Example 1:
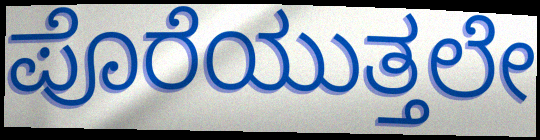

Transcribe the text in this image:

ಪೊರೆಯುತ್ತಲೇ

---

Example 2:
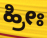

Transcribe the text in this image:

ಹ್ರೀಃ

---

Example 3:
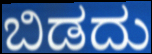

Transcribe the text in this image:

ಬಿಡದು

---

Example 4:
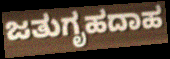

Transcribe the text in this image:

ಜತುಗೃಹದಾಹ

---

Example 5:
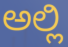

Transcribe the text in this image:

ಅಲ್ಲಿ